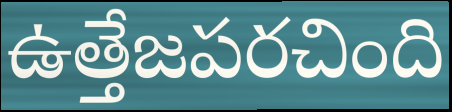
ఉత్తేజపరచింది